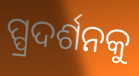
ପ୍ପ୍ରଦର୍ଶନକୁ